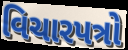
વિચારપત્રો